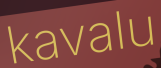
kavalu